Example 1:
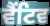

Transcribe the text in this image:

ਵੈਂਟਿਵ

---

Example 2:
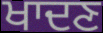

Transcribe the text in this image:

ਖਾਦਣ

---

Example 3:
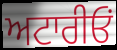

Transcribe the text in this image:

ਅਟਾਰੀਓਂ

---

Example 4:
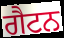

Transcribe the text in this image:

ਗੈਟਨ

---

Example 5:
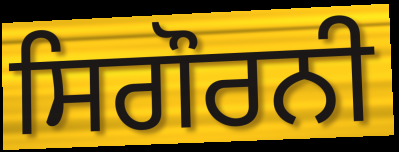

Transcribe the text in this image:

ਸਿਗੌਰਨੀ